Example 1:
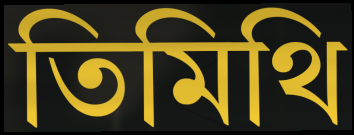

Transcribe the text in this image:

তিমিথি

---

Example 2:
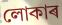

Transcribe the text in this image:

লোকাৰ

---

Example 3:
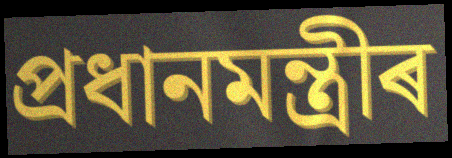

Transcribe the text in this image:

প্ৰধানমন্ত্ৰীৰ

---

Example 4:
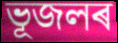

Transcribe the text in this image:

ভূজলৰ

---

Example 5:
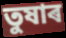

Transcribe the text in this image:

তুষাৰ